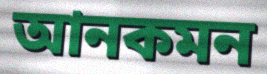
আনকমন